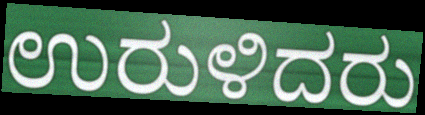
ಉರುಳಿದರು